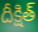
దీక్షిత్